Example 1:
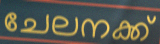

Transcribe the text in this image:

ചേലനക്ക്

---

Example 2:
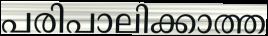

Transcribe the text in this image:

പരിപാലിക്കാത്ത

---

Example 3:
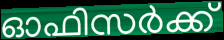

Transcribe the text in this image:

ഓഫിസർക്ക്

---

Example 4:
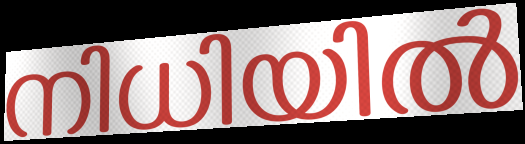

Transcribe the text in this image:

നിധിയിൽ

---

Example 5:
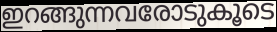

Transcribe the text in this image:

ഇറങ്ങുന്നവരോടുകൂടെ